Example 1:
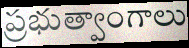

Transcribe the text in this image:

ప్రభుత్వాంగాలు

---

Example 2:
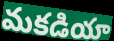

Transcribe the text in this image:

మకడియా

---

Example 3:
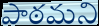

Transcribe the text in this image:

పాఠమని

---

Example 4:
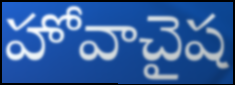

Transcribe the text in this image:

హోవాచైష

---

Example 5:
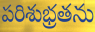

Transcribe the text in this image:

పరిశుభ్రతను